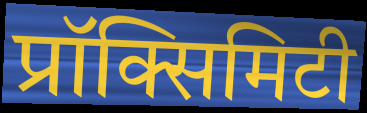
प्रॉक्सिमिटी